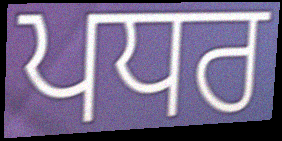
ਪਧਰ